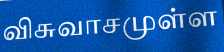
விசுவாசமுள்ள